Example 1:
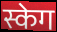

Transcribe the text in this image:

स्केग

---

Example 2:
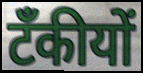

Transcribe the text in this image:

टँकीयों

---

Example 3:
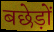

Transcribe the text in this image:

बछेड़ों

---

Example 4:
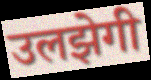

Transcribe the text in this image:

उलझेगी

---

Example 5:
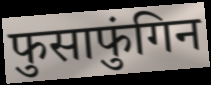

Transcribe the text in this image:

फुसाफुंगिन